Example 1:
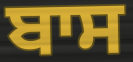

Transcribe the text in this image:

ਬਾਸ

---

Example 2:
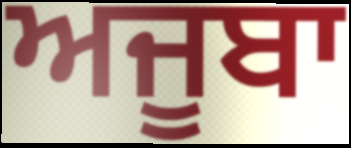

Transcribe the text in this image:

ਅਜੂਬਾ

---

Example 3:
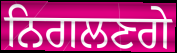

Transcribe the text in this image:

ਨਿਗਲਣਗੇ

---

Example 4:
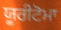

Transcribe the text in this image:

ਯੂਰੀਟੋਮਾ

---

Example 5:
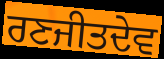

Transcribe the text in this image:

ਰਣਜੀਤਦੇਵ